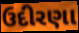
ઉદીરણા